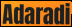
Adaradi